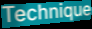
Technique